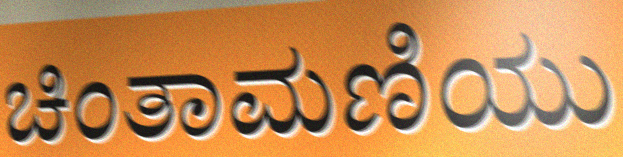
ಚಿಂತಾಮಣಿಯು